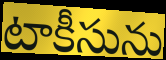
టాకీసును